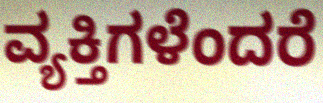
ವ್ಯಕ್ತಿಗಳೆಂದರೆ